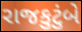
રાજકુટુંબે